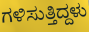
ಗಳಿಸುತ್ತಿದ್ದಳು